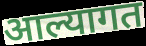
आल्यागत